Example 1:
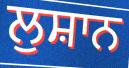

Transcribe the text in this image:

ਲੁਸ਼ਾਨ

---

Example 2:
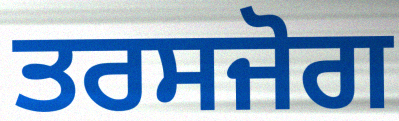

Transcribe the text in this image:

ਤਰਸਜੋਗ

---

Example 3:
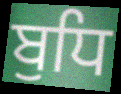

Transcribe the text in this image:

ਬੁਧਿ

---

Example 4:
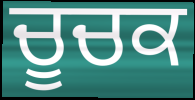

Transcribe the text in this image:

ਚੂਚਕ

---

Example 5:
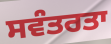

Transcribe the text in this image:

ਸਵੰਤਰਤਾ